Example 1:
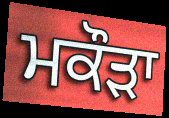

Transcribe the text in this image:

ਮਕੌੜਾ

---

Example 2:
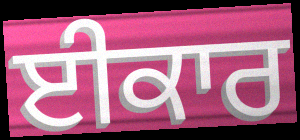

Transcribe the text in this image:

ਈਕਾਰ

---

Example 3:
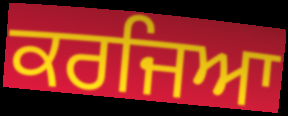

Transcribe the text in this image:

ਕਰਜਿਆ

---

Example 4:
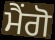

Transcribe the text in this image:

ਮੈਂਗੋ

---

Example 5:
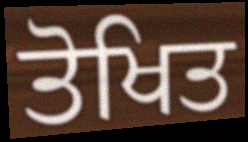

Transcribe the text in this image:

ਤੋਖਿਤ